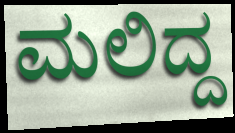
ಮಲಿದ್ದ